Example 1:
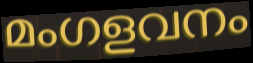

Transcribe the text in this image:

മംഗളവനം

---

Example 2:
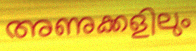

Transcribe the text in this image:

അണുക്കളിലും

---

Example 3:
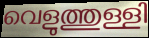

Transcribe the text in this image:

വെളുത്തുള്ളി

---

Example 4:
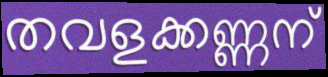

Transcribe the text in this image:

തവളക്കണ്ണന്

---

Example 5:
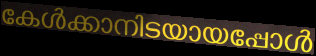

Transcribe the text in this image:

കേൾക്കാനിടയായപ്പോൾ